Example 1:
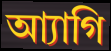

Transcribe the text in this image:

আ্যাগি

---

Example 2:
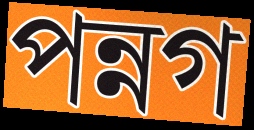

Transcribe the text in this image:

পন্নগ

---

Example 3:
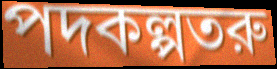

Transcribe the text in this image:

পদকল্পতরু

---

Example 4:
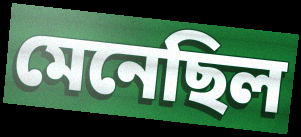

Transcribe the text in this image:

মেনেছিল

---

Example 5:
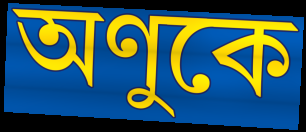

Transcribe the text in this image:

অণুকে